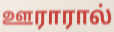
ஊராரால்